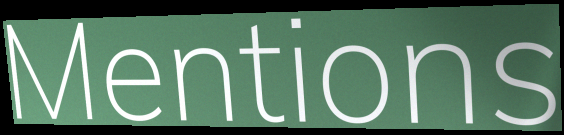
Mentions